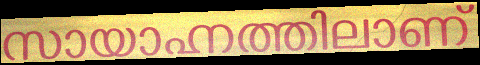
സായാഹ്നത്തിലാണ്